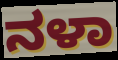
ನಳಾ